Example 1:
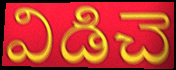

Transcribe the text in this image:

విడిచె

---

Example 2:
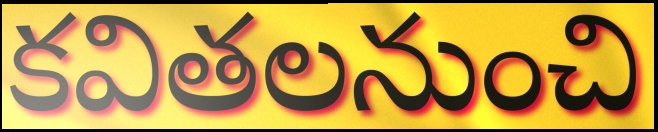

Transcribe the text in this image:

కవితలనుంచి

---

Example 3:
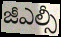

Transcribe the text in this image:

జీఎల్సీ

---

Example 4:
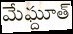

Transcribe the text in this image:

మేఘ్దూత్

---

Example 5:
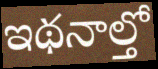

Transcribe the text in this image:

ఇథనాల్తో